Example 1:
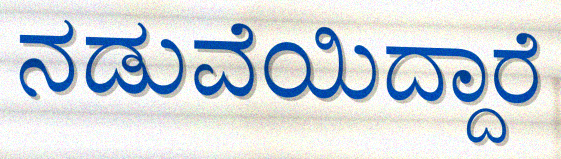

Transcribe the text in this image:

ನಡುವೆಯಿದ್ದಾರೆ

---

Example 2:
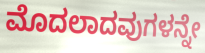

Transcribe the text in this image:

ಮೊದಲಾದವುಗಳನ್ನೇ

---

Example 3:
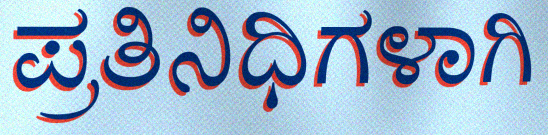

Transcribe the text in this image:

ಪ್ರತಿನಿಧಿಗಳಾಗಿ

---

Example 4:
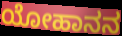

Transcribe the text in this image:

ಯೋಹಾನನ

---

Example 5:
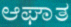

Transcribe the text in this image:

ಆಘಾತ